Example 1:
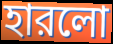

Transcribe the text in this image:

হারলো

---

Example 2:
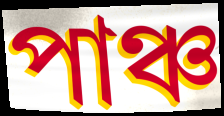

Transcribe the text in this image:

পাঞ্চ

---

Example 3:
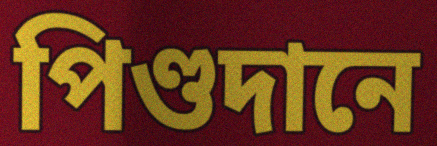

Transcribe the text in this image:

পিণ্ডদানে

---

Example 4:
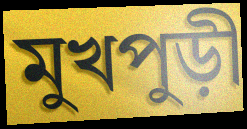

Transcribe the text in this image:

মুখপুড়ী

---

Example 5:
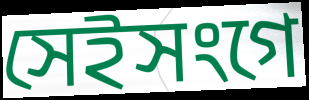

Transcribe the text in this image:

সেইসংগে